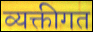
व्यक्तीगत